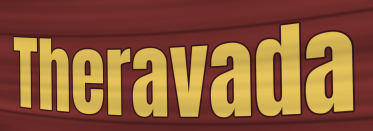
Theravada